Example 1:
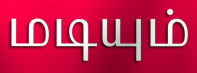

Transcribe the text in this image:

மடியும்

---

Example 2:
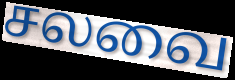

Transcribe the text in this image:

சலவை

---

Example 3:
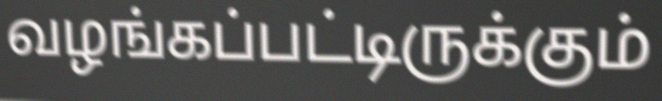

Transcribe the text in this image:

வழங்கப்பட்டிருக்கும்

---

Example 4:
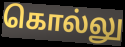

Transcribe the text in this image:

கொல்லு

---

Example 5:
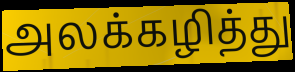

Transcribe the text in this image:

அலக்கழித்து